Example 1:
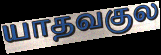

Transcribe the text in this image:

யாதவகுல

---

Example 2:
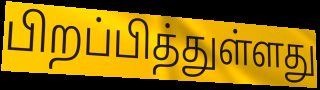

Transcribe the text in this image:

பிறப்பித்துள்ளது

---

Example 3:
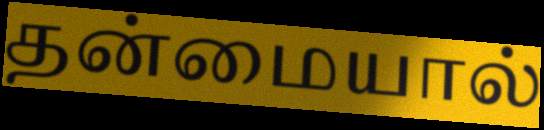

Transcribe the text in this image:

தன்மையால்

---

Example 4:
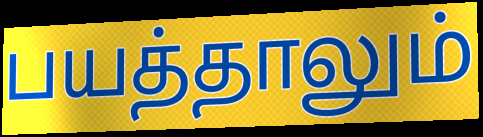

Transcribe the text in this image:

பயத்தாலும்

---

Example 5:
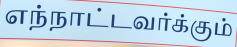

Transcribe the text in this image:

எந்நாட்டவர்க்கும்